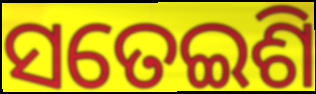
ସତେଇଶି